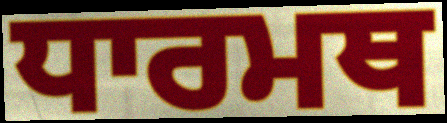
ਧਾਰਮਥ